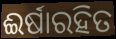
ଈର୍ଷାରହିତ